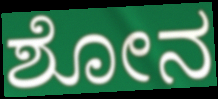
ಶೋನ